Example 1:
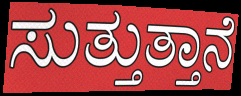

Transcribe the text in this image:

ಸುತ್ತುತ್ತಾನೆ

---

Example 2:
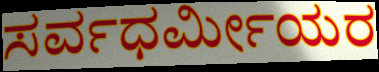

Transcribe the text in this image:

ಸರ್ವಧರ್ಮೀಯರ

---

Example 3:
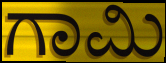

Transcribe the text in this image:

ಗಾಮಿ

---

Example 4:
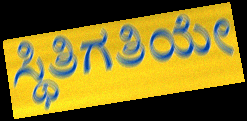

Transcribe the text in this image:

ಸ್ಥಿತಿಗತಿಯೇ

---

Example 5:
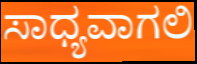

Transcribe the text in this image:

ಸಾಧ್ಯವಾಗಲಿ